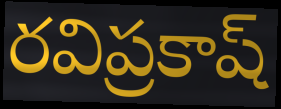
రవిప్రకాష్